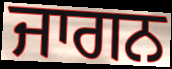
ਜਾਗਨ